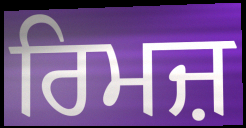
ਰਿਮਜ਼